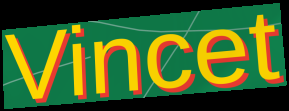
Vincet